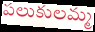
పలుకులమ్మ